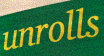
unrolls